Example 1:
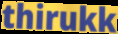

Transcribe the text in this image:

thirukk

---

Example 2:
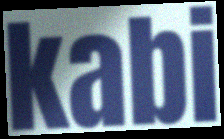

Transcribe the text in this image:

kabi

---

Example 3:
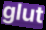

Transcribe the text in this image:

glut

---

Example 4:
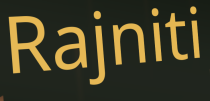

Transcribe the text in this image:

Rajniti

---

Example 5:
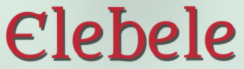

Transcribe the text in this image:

Elebele